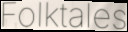
Folktales